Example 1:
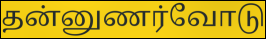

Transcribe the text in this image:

தன்னுணர்வோடு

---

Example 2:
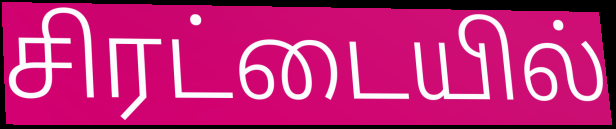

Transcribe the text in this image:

சிரட்டையில்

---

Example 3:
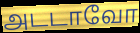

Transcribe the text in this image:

அடடாவோ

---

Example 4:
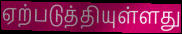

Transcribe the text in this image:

ஏற்படுத்தியுள்ளது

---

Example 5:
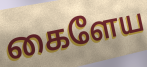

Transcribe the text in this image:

கைளேய